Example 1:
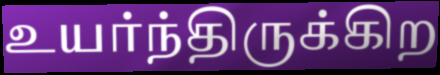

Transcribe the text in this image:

உயர்ந்திருக்கிற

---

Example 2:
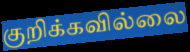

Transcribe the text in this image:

குறிக்கவில்லை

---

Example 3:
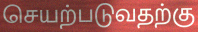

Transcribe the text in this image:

செயற்படுவதற்கு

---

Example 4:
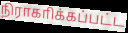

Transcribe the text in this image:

நிராகரிக்கப்பட்ட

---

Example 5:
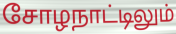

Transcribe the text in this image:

சோழநாட்டிலும்